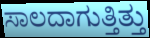
ಸಾಲದಾಗುತ್ತಿತ್ತು